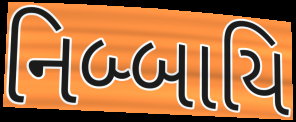
નિબ્બાયિ